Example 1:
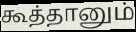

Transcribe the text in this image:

கூத்தானும்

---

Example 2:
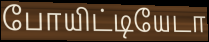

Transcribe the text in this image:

போயிட்டியேடா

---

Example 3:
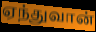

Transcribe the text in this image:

ஏந்துவான்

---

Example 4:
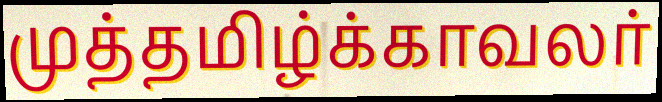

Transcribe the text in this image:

முத்தமிழ்க்காவலர்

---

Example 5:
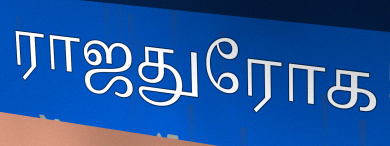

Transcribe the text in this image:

ராஜதுரோக